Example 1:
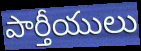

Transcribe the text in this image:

పార్తీయులు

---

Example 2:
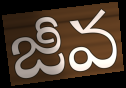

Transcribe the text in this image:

జీవ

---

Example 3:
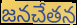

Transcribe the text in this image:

జనచేతన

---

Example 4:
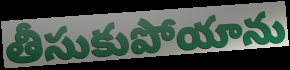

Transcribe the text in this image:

తీసుకుపోయాను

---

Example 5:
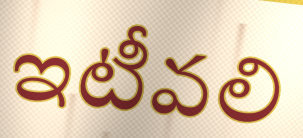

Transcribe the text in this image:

ఇటీవలి